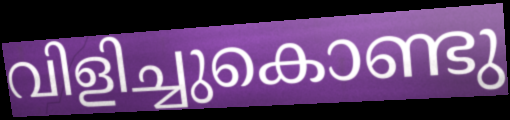
വിളിച്ചുകൊണ്ടു